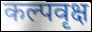
कल्‍पवृक्ष